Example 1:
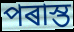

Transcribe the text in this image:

পৰাস্ত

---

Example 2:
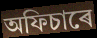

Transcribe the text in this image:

অফিচাৰে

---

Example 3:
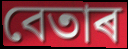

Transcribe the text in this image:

বেতাৰ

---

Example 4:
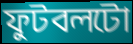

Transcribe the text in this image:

ফুটবলটো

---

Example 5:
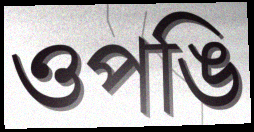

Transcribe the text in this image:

ওপঙি